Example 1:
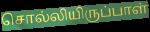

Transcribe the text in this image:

சொல்லியிருப்பாள்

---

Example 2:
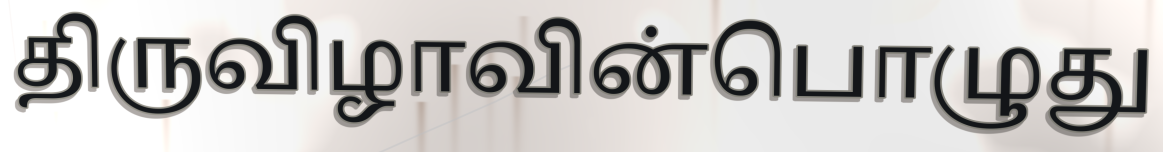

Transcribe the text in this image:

திருவிழாவின்பொழுது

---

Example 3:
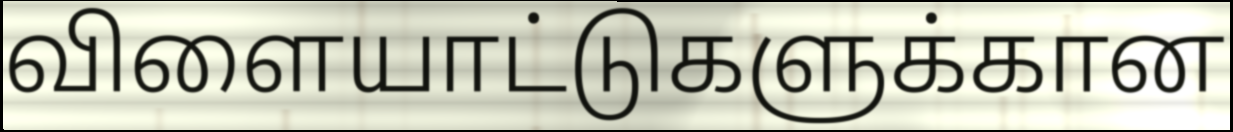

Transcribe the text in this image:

விளையாட்டுகளுக்கான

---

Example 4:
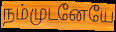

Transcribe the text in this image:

நம்முடனேயே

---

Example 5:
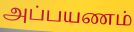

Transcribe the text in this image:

அப்பயணம்